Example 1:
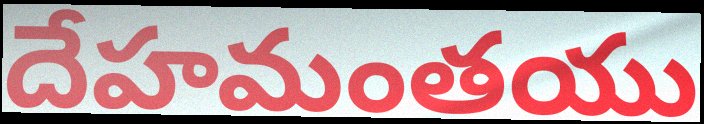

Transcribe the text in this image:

దేహమంతయు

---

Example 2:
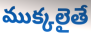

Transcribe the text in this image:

ముక్కలైతే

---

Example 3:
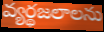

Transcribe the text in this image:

వ్యర్థజలాలను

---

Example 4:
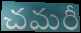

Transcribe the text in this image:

చమరీ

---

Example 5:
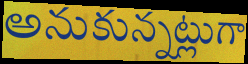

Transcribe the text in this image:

అనుకున్నట్లుగా